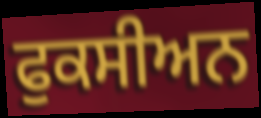
ਫੁਕਸੀਅਨ